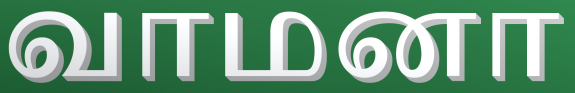
வாமனா